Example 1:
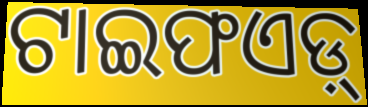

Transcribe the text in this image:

ଟାଇଫଏଡ଼୍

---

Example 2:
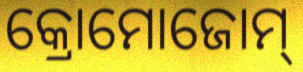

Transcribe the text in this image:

କ୍ରୋମୋଜୋମ୍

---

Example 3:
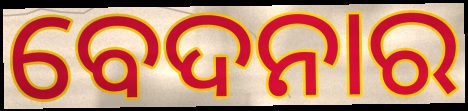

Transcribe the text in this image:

ବେଦନାର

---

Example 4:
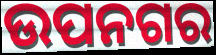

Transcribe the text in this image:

ଉପନଗର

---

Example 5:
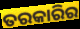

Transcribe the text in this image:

ତରକାରିର